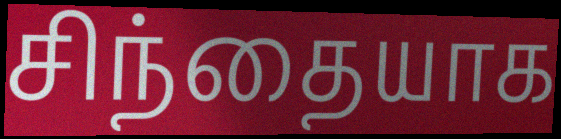
சிந்தையாக